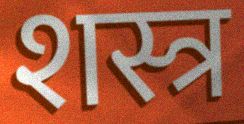
शस्त्र